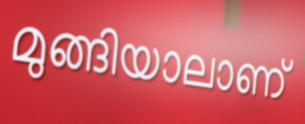
മുങ്ങിയാലാണ്